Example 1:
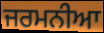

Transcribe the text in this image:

ਜਰਮਨੀਆ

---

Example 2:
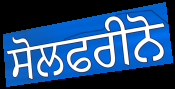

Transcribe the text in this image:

ਸੋਲਫਰੀਨੋ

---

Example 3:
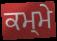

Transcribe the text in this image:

ਕਮ੍ਮੇ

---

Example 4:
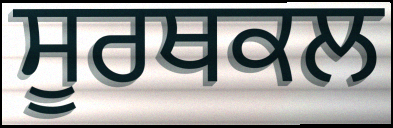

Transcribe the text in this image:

ਸੂਰਥਕਲ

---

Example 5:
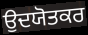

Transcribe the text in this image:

ਉਦਯੋਤਕਰ